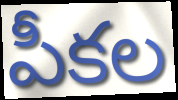
పీకల